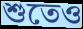
শুতেও